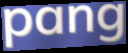
pang